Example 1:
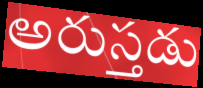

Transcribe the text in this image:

అరుస్తడు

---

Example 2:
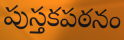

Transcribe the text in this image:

పుస్తకపఠనం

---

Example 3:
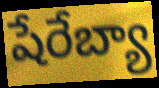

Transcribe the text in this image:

షేరేబ్యా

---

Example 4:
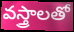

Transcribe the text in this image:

వస్త్రాలతో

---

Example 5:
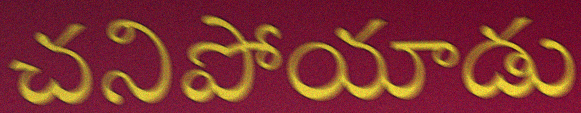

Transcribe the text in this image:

చనిపోయాడు